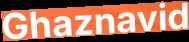
Ghaznavid